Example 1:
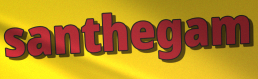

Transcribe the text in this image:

santhegam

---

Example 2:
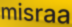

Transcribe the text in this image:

misraa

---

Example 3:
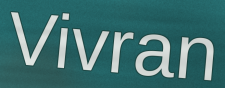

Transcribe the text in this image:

Vivran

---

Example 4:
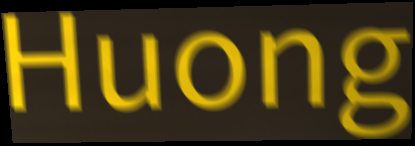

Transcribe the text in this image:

Huong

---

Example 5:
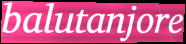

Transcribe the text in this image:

balutanjore